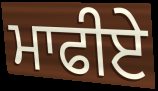
ਮਾਫੀਏ